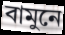
বামুনে